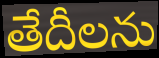
తేదీలను